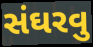
સંઘરવુ